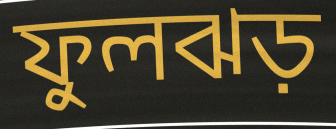
ফুলঝড়